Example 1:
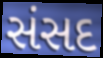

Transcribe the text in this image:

સંસદ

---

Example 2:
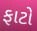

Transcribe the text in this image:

ફાટો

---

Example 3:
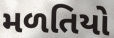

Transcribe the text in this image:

મળતિયો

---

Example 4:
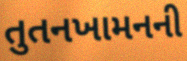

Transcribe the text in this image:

તુતનખામનની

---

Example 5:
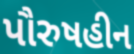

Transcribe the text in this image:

પૌરુષહીન